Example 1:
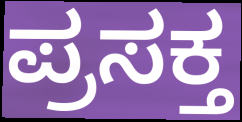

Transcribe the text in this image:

ಪ್ರಸಕ್ತ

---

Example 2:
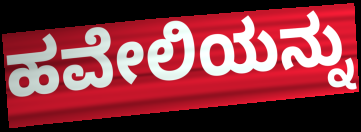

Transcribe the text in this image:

ಹವೇಲಿಯನ್ನು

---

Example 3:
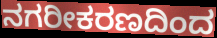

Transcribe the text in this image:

ನಗರೀಕರಣದಿಂದ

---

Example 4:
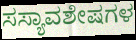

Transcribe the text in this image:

ಸಸ್ಯಾವಶೇಷಗಳ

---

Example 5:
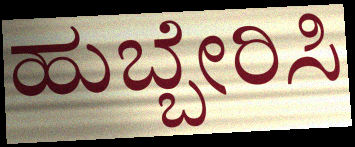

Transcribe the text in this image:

ಹುಬ್ಬೇರಿಸಿ